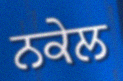
ਨਕੇਲ